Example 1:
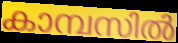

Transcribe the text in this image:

കാമ്പസിൽ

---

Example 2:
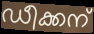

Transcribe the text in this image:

ഡീക്കന്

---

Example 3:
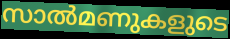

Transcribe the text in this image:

സാൽമണുകളുടെ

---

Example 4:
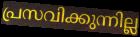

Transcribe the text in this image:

പ്രസവിക്കുന്നില്ല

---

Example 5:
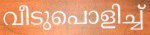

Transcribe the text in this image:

വീടുപൊളിച്ച്